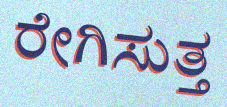
ರೇಗಿಸುತ್ತ